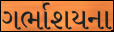
ગર્ભાશયના